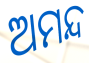
ଅମନ୍ଦ